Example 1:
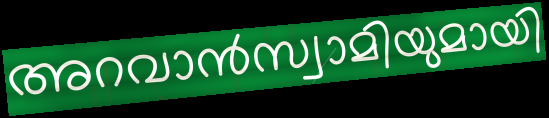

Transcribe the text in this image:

അറവാൻസ്വാമിയുമായി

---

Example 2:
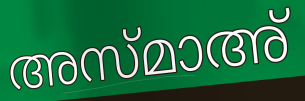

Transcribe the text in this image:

അസ്മാഅ്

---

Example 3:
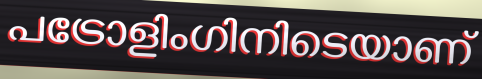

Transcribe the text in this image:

പട്രോളിംഗിനിടെയാണ്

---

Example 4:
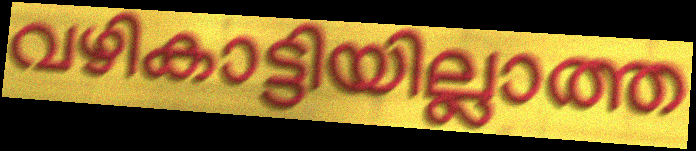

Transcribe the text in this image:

വഴികാട്ടിയില്ലാത്ത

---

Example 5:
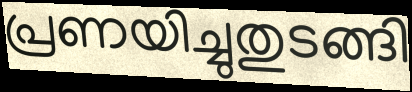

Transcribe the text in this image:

പ്രണയിച്ചുതുടങ്ങി